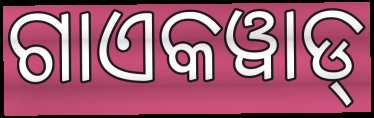
ଗାଏକୱାଡ୍